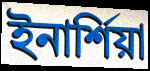
ইনার্শিয়া